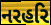
નરહરિ